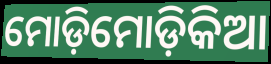
ମୋଡ଼ିମୋଡ଼ିକିଆ